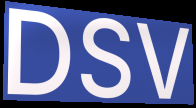
DSV